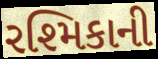
રશ્મિકાની